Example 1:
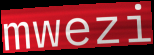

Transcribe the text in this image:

mwezi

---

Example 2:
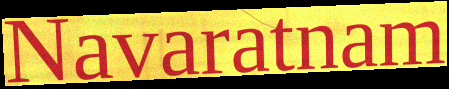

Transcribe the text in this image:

Navaratnam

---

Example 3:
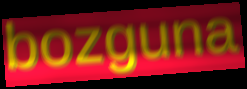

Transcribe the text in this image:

bozguna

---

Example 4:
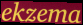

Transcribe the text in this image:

ekzema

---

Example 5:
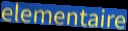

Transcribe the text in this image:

elementaire